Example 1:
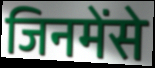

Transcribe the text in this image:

जिनमेंसे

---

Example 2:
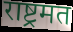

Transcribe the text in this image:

राष्ट्रमत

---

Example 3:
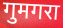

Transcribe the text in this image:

गुमगरा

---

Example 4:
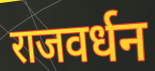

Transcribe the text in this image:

राजवर्धन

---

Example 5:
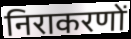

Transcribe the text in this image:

निराकरणों